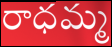
రాధమ్మ